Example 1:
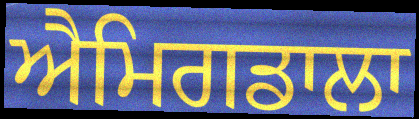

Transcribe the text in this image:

ਐਮਿਗਡਾਲਾ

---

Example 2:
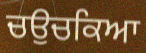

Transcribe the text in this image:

ਚਉਚਕਿਆ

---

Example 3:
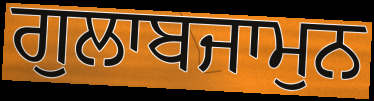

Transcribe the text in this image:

ਗੁਲਾਬਜਾਮੁਨ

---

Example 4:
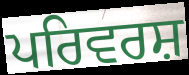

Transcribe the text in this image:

ਪਰਿਵਰਸ਼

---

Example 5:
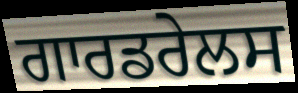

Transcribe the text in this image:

ਗਾਰਡਰੇਲਸ